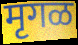
मृगळ